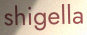
shigella